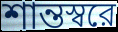
শান্তস্বরে